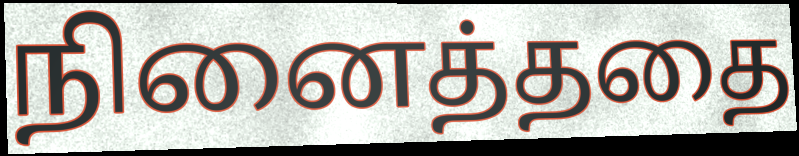
நினைத்ததை